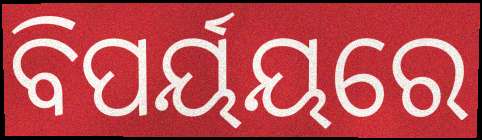
ବିପର୍ୟୟରେ